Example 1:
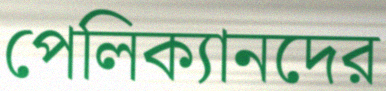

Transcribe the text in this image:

পেলিক্যানদের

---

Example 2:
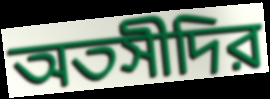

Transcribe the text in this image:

অতসীদির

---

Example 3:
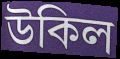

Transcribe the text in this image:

উকিল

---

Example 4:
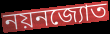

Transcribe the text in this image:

নয়নজ্যোত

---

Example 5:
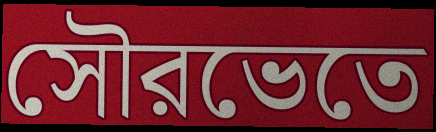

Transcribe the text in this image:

সৌরভেতে